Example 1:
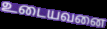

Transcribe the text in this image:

உடையவனை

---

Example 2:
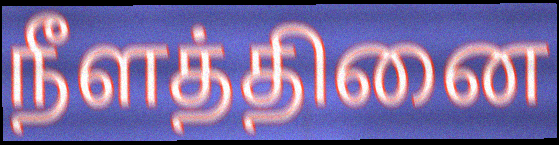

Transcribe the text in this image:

நீளத்தினை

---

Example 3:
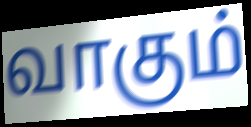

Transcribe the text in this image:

வாகும்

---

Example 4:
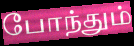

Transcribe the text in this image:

போந்தும்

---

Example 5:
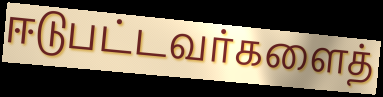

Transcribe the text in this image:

ஈடுபட்டவர்களைத்